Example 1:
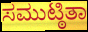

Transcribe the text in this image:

ಸಮುಟ್ಠಿತಾ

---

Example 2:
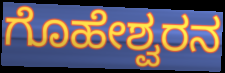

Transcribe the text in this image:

ಗೊಹೇಶ್ವರನ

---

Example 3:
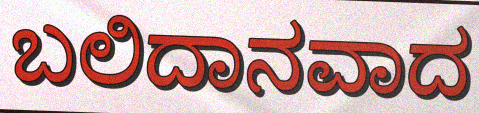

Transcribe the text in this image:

ಬಲಿದಾನವಾದ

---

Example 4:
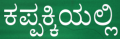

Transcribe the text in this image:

ಕಪ್ಪಕ್ಕಿಯಲ್ಲಿ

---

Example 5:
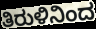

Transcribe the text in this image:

ತಿರುಳಿನಿಂದ